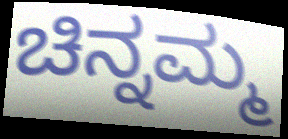
ಚಿನ್ನಮ್ಮ